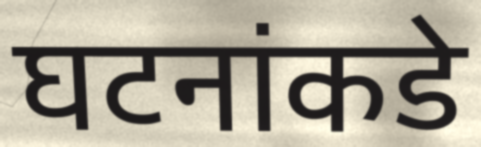
घटनांकडे